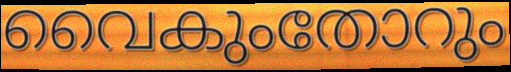
വൈകുംതോറും